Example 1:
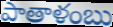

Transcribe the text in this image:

పాతాళంబు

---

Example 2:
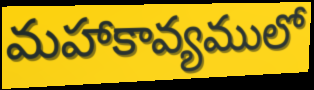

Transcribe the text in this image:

మహాకావ్యములో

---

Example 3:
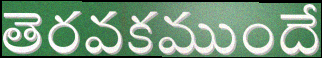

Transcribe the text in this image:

తెరవకముందే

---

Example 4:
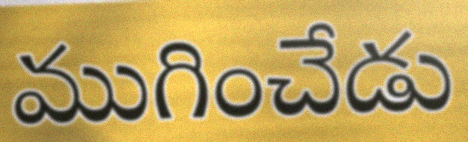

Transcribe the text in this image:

ముగించేడు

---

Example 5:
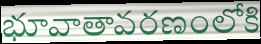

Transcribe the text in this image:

భూవాతావరణంలోకి